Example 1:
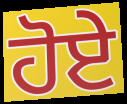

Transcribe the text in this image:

ਹੋਏੇ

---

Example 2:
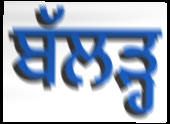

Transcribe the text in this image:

ਬੱਲੜ੍ਹ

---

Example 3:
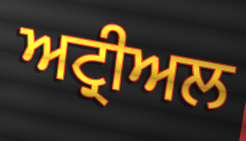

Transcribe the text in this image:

ਅਟ੍ਰੀਅਲ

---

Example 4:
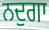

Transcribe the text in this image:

ਨਦੁਗਾ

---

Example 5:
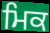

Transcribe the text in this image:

ਮਿਕ